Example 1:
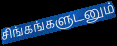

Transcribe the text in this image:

சிங்கங்களுடனும்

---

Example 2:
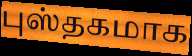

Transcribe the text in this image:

புஸ்தகமாக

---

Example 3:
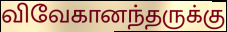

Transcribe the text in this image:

விவேகானந்தருக்கு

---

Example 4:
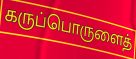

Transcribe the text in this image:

கருப்பொருளைத்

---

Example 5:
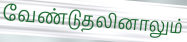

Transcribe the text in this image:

வேண்டுதலினாலும்